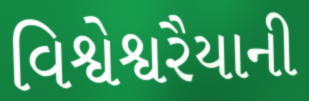
વિશ્વેશ્વરૈયાની